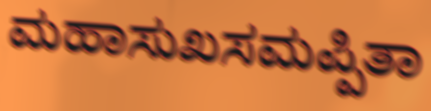
ಮಹಾಸುಖಸಮಪ್ಪಿತಾ